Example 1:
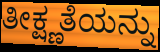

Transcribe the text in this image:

ತೀಕ್ಷ್ಣತೆಯನ್ನು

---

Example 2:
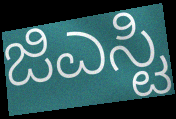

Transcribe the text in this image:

ಜಿಎಸ್ಟಿ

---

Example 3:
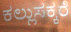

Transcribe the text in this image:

ಕಲ್ಲುಸಕ್ಕರೆ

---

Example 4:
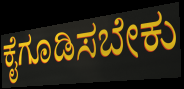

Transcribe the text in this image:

ಕೈಗೂಡಿಸಬೇಕು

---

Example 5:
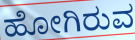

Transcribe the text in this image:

ಹೋಗಿರುವ